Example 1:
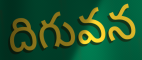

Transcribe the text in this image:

దిగువన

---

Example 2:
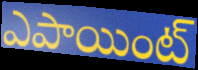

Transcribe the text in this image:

ఎపాయింట్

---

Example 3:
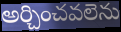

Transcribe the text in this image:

అర్చించవలెను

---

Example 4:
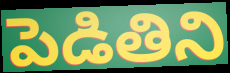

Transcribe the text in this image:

పెడితిని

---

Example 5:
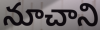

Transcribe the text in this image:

నూచాని